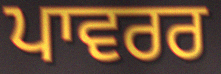
ਪਾਵਰਰ